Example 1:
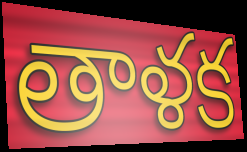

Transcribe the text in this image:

తాళక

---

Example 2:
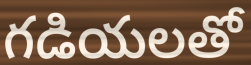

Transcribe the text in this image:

గడియలతో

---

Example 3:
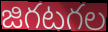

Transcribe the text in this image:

జిగటగల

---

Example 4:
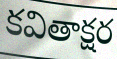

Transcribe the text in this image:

కవితాక్షర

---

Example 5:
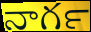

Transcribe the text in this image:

నాగర్‍